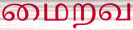
மைறவ